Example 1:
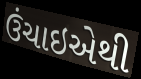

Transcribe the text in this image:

ઉંચાઇએથી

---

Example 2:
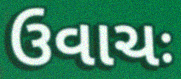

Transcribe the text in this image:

ઉવાચઃ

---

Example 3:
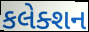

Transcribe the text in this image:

કલેક્શન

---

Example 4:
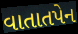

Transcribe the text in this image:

વાતાતપેન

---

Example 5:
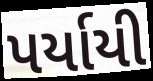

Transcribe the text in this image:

પર્યાયી